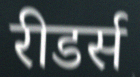
रीडर्स